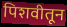
पिशवीतून